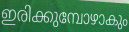
ഇരിക്കുമ്പോഴാകും